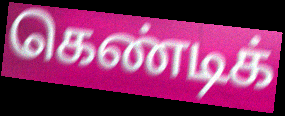
கெண்டிக்